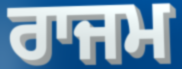
ਰਾਜਮ